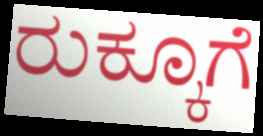
ರುಕ್ಕೂಗೆ